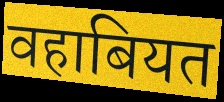
वहाबियत